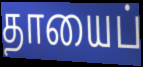
தாயைப்